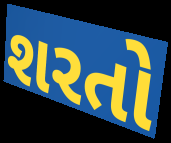
શરતો